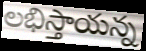
లభిస్తాయన్న